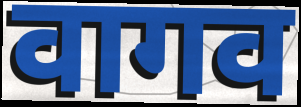
वागव